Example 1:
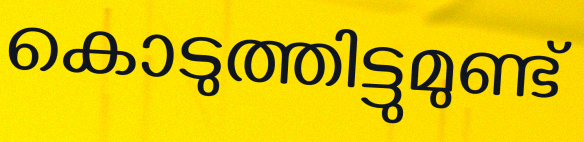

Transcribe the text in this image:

കൊടുത്തിട്ടുമുണ്ട്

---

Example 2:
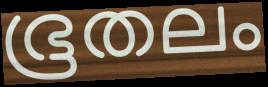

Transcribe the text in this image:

ഭൂതലം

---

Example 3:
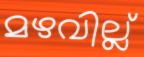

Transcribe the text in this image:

മഴവില്ല്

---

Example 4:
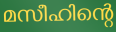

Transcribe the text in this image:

മസീഹിന്റെ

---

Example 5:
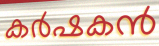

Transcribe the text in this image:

കർഷകൻ